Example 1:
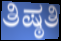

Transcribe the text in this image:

ತಿಷ್ಠತಿ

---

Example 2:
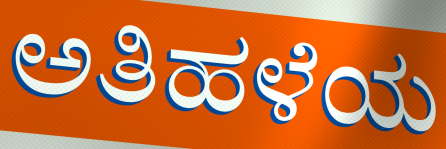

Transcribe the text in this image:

ಅತಿಹಳೆಯ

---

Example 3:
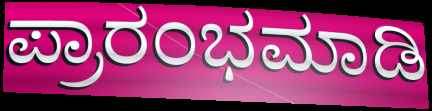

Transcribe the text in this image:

ಪ್ರಾರಂಭಮಾಡಿ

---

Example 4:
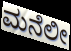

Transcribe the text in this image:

ಮನೆಲೀ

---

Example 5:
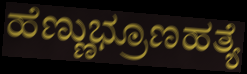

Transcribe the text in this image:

ಹೆಣ್ಣುಭ್ರೂಣಹತ್ಯೆ